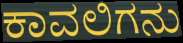
ಕಾವಲಿಗನು